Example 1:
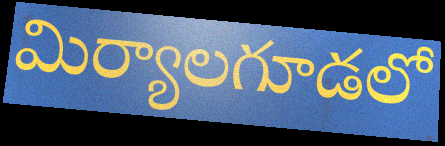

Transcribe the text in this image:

మిర్యాలగూడలో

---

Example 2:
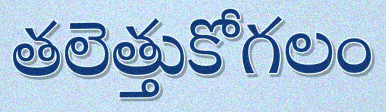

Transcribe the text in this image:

తలెత్తుకోగలం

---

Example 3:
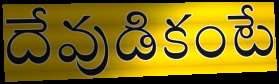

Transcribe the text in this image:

దేవుడికంటే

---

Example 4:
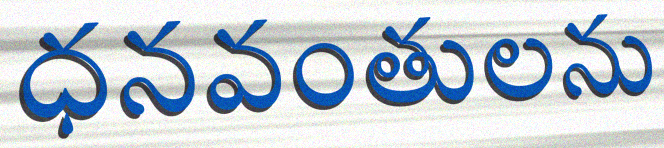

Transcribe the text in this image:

ధనవంతులను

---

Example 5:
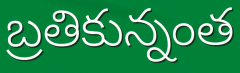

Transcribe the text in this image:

బ్రతికున్నంత